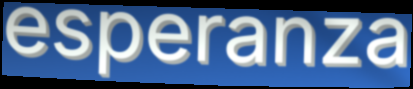
esperanza